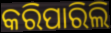
କରିପାରିଲି